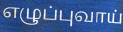
எழுப்புவாய்